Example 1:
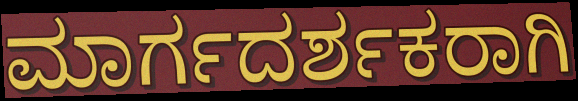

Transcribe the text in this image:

ಮಾರ್ಗದರ್ಶಕರಾಗಿ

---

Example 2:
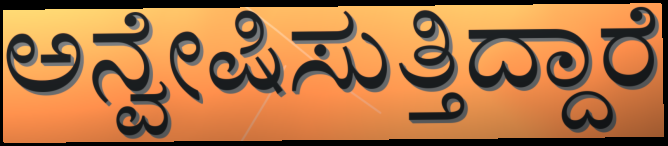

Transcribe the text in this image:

ಅನ್ವೇಷಿಸುತ್ತಿದ್ದಾರೆ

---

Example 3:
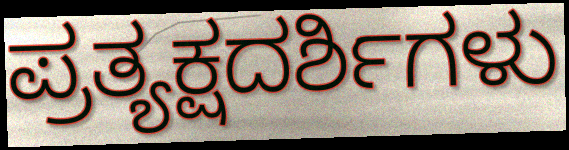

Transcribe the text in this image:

ಪ್ರತ್ಯಕ್ಷದರ್ಶಿಗಳು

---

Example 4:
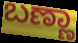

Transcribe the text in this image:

ಬಣ್ಣಾ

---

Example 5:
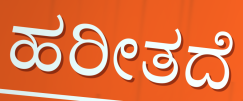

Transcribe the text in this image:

ಹರೀತದೆ